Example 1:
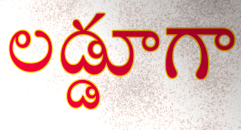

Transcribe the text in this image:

లడ్డూగా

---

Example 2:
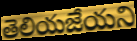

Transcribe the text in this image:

తెలియజేయని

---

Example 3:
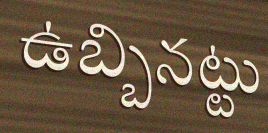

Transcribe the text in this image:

ఉబ్బినట్టు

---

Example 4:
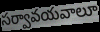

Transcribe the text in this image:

సర్వావయవాలూ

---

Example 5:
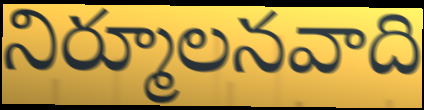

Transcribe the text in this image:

నిర్మూలనవాది